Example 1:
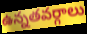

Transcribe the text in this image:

ఉన్నతవర్గాలు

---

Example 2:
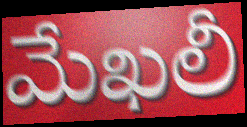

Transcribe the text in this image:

మేఖలీ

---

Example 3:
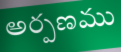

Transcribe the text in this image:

అర్పణము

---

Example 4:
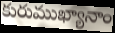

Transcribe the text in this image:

కురుముఖ్యానాం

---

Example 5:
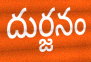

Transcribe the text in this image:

దుర్జనం